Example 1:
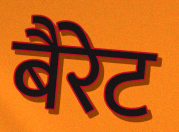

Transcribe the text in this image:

बैरेट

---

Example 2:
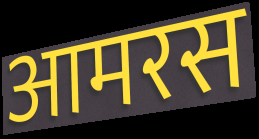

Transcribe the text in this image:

आमरस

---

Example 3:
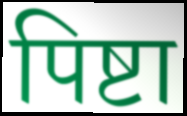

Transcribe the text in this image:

पिष्टा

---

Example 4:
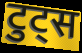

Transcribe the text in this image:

टुट्स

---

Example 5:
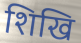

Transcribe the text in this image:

शिखि